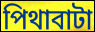
পিথাবাটা